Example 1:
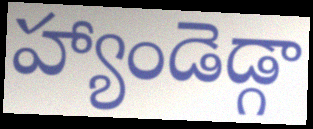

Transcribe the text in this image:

హ్యాండెడ్గా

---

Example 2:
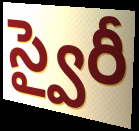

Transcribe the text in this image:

స్వైరీ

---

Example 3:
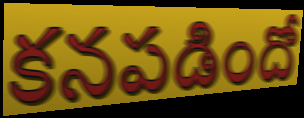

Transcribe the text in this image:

కనపడిందో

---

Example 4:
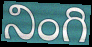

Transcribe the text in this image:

నింగి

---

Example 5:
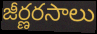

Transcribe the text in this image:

జీర్ణరసాలు